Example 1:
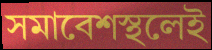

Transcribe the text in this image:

সমাবেশস্থলেই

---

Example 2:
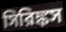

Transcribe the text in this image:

সিরিঙ্কস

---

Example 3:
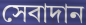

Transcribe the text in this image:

সেবাদান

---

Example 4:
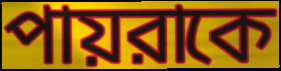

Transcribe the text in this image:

পায়রাকে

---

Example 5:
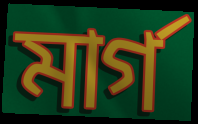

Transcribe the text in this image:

মার্গ